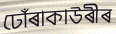
ঢোঁৰাকাউৰীৰ